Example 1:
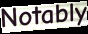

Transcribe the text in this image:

Notably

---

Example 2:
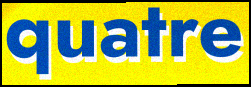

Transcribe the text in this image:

quatre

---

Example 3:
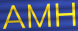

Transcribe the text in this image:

AMH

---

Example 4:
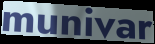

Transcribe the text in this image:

munivar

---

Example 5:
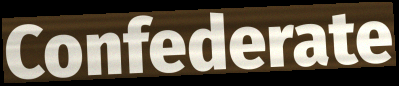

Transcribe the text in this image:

Confederate